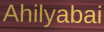
Ahilyabai